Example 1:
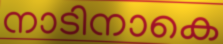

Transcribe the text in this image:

നാടിനാകെ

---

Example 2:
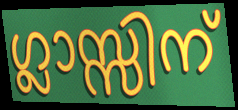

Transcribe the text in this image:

ഗ്ലാസ്സിന്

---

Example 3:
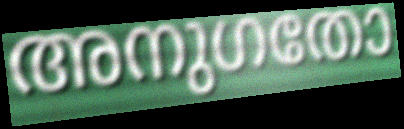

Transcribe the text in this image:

അനുഗതോ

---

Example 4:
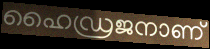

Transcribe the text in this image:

ഹൈഡ്രജനാണ്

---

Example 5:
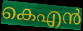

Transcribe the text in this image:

കെഎൻ